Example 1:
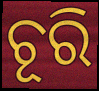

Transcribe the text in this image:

ଚୂରି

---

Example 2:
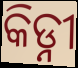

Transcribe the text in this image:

କିଡ୍ନୀ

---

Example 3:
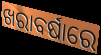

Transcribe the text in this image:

ଖରାବର୍ଷାରେ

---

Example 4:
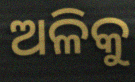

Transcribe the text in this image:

ଅଳିକୁ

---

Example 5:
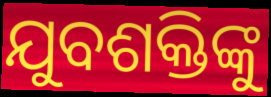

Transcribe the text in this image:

ଯୁବଶକ୍ତିଙ୍କୁ